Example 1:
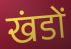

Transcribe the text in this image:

खंडों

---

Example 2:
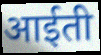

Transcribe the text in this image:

आईती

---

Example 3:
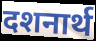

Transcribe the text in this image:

दशनार्थ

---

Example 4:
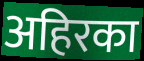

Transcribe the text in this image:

अहिरका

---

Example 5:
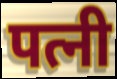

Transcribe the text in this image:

पत्नी